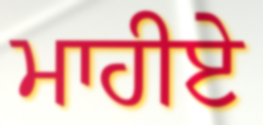
ਮਾਹੀਏ